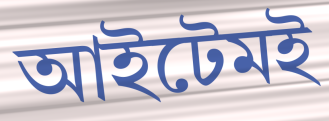
আইটেমই